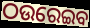
ଠଉରେଇବ